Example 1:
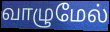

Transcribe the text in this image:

வாழுமேல்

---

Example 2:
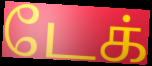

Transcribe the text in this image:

டேக்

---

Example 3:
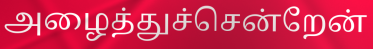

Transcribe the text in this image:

அழைத்துச்சென்றேன்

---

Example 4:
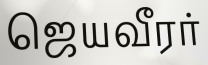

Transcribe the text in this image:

ஜெயவீரர்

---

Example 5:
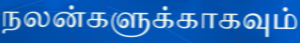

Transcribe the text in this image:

நலன்களுக்காகவும்